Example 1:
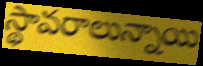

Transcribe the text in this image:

స్థావరాలున్నాయి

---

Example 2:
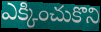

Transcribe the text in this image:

ఎక్కించుకొని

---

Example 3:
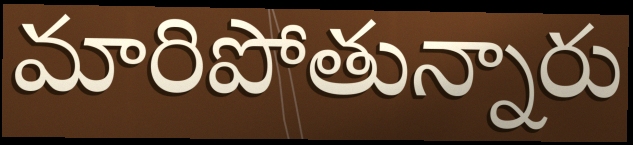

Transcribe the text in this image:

మారిపోతున్నారు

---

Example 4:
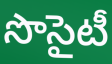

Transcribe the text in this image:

సొసైటీ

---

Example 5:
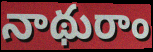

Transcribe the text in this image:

నాథురాం